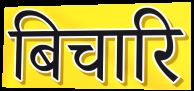
बिचारि